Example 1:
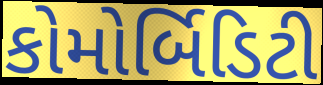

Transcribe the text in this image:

કોમોર્બિડિટી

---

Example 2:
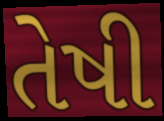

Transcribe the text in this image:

તેષી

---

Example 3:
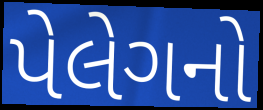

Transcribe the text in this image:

પેલેગનો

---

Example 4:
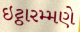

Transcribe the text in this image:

ઇટ્ઠારમ્મણે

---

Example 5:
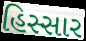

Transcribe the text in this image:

હિસ્સાર